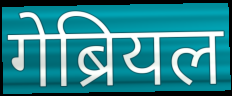
गेब्रियल